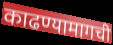
काढण्यामागची